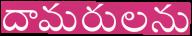
దామరులను